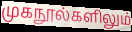
முகநூல்களிலும்